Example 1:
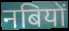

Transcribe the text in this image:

नबियों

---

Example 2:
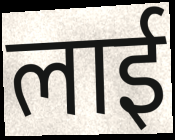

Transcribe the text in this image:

लाई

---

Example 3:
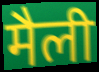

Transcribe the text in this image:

मैली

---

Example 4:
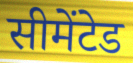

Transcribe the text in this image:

सीमेंटेड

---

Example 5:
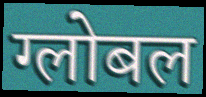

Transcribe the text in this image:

ग्लोबल